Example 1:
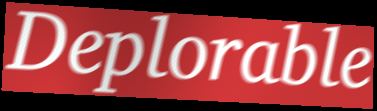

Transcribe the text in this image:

Deplorable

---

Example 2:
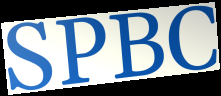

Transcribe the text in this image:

SPBC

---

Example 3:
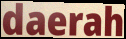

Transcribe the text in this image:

daerah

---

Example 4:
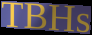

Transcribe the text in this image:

TBHs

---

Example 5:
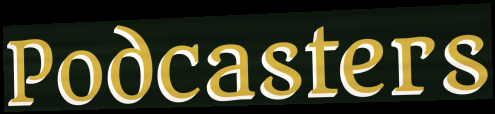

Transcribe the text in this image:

Podcasters